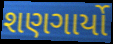
શણગાર્યો